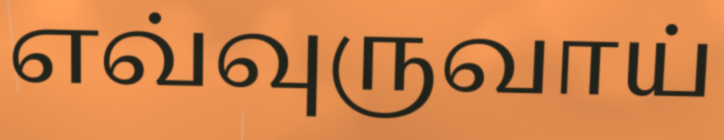
எவ்வுருவாய்